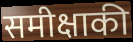
समीक्षाकी